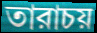
তারাচয়